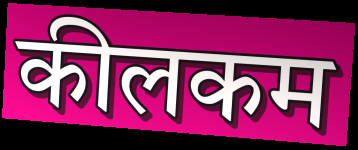
कीलकम